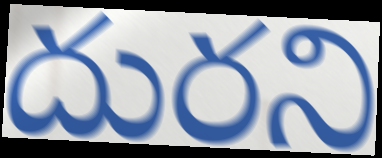
దురని